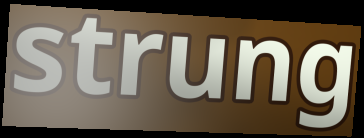
strung